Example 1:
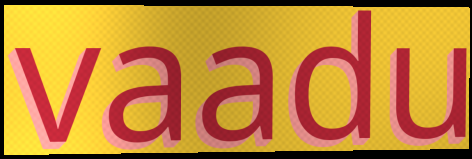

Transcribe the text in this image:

vaadu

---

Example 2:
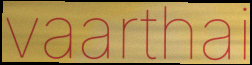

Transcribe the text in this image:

vaarthai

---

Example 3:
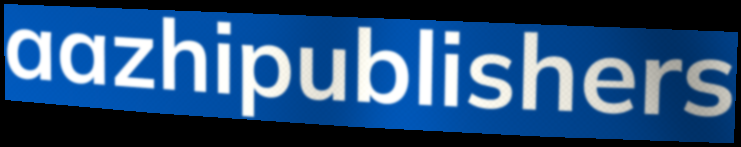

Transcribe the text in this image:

aazhipublishers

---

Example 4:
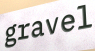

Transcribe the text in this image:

gravel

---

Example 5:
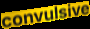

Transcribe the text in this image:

convulsive